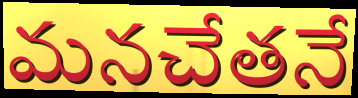
మనచేతనే